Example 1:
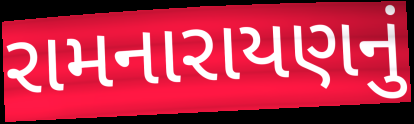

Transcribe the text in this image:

રામનારાયણનું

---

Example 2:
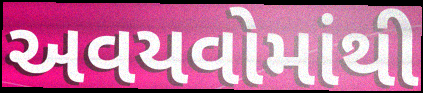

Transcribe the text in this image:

અવયવોમાંથી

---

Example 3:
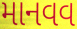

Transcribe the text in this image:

માનવવ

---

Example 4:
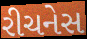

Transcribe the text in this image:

રીચનેસ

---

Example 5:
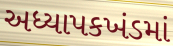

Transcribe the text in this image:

અધ્યાપકખંડમાં